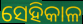
ସେହିକାଳ